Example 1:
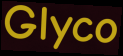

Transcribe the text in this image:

Glyco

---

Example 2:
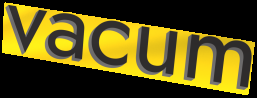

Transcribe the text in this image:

vacum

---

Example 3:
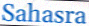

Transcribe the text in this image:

Sahasra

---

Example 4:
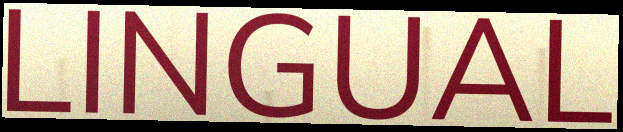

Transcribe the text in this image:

LINGUAL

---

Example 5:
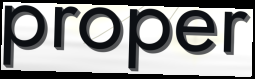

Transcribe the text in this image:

proper